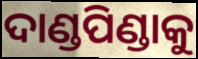
ଦାଣ୍ଡପିଣ୍ଡାକୁ